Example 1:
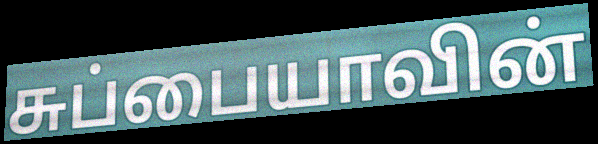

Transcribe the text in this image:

சுப்பையாவின்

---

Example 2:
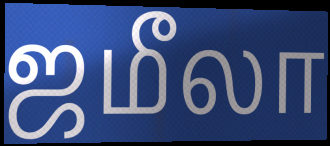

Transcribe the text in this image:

ஜமீலா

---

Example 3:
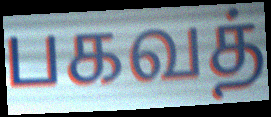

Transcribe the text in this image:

பகவத்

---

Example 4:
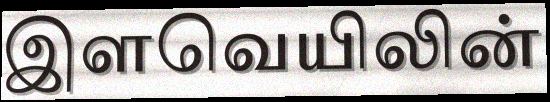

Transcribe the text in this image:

இளவெயிலின்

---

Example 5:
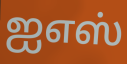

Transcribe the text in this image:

ஐஎஸ்